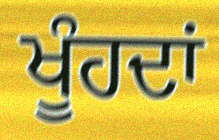
ਖੂੰਹਦਾਂ